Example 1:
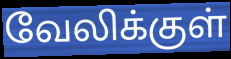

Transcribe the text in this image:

வேலிக்குள்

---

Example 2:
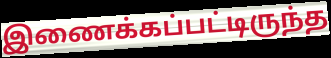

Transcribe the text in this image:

இணைக்கப்பட்டிருந்த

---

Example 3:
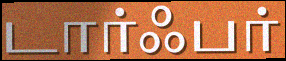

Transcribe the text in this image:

டார்ஃபர்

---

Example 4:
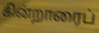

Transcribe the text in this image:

கின்றாரைப்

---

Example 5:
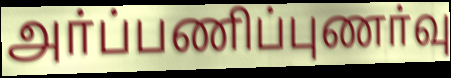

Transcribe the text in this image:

அர்ப்பணிப்புணர்வு